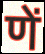
णें